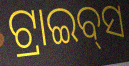
ଟ୍ରାଇବ୍‌ସ